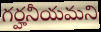
గర్హనీయమని